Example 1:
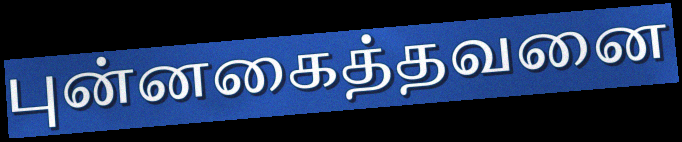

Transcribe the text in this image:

புன்னகைத்தவனை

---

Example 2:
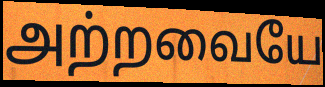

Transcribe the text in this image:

அற்றவையே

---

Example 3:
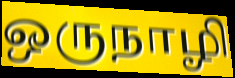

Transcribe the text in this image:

ஒருநாழி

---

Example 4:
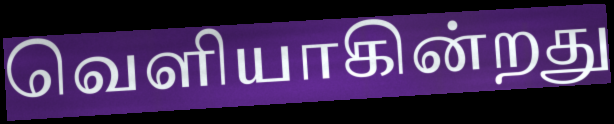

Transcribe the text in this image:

வெளியாகின்றது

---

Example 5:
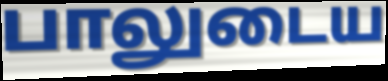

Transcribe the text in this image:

பாலுடைய